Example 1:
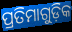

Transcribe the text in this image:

ପ୍ରତିମାଗୁଡ଼ିକ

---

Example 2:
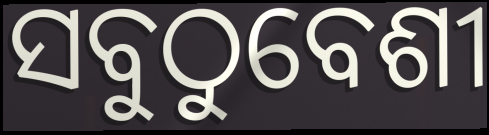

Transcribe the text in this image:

ସବୁଠୁବେଶୀ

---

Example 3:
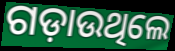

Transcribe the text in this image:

ଗଡ଼ାଉଥିଲେ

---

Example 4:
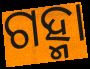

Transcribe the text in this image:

ଗହ୍ମା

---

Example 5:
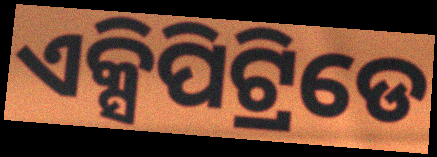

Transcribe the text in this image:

ଏକ୍ସିପିଟ୍ରିଡେ